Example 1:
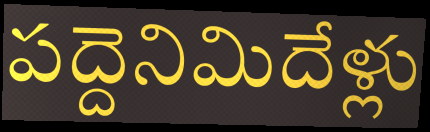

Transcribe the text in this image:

పద్దెనిమిదేళ్లు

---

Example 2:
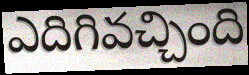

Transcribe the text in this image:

ఎదిగివచ్చింది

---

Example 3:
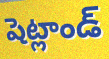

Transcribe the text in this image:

షెట్లాండ్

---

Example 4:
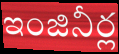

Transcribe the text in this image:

ఇంజినీర్ల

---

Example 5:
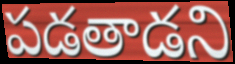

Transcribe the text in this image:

పడతాడని